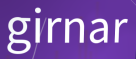
girnar